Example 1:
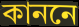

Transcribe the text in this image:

কাননে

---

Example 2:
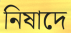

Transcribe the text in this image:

নিষাদে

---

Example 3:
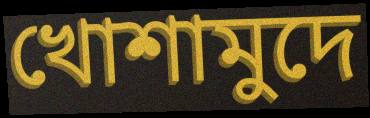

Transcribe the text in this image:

খোশামুদে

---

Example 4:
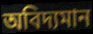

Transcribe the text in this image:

অবিদ্যমান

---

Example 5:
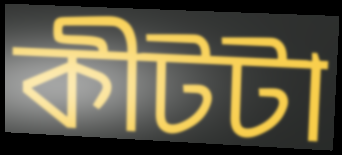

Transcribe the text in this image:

কীটটা